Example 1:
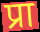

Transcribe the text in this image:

प्रा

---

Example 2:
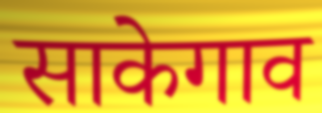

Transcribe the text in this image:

साकेगाव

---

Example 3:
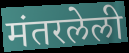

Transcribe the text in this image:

मंतरलेली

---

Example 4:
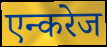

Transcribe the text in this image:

एन्करेज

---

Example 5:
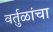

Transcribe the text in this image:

वर्तुळांचा